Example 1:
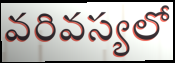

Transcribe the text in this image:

వరివస్యలో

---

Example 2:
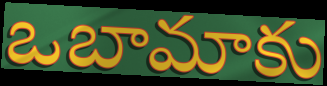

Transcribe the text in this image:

ఒబామాకు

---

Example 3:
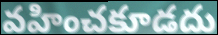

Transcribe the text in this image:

వహించకూడదు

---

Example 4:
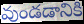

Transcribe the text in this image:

వుండడానికి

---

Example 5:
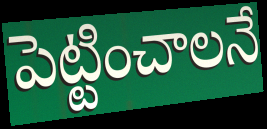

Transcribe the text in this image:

పెట్టించాలనే